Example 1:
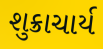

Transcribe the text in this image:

શુક્રાચાર્ય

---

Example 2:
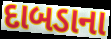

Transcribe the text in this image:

દાબડાના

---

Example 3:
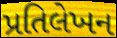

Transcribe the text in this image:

પ્રતિલેખન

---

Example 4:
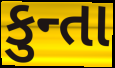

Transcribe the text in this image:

કુન્તા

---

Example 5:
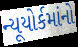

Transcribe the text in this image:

ન્યૂયોર્કમાંનો